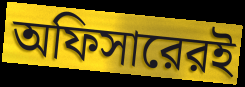
অফিসারেরই